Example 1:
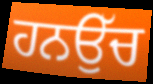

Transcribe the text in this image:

ਹਨਉੱਚ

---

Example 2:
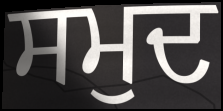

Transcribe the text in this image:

ਸਮੁਦ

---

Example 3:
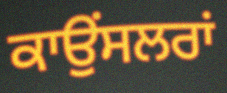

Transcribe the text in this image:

ਕਾਉਂਸਲਰਾਂ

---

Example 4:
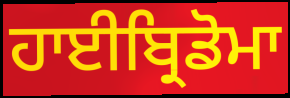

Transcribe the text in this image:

ਹਾਈਬ੍ਰਿਡੋਮਾ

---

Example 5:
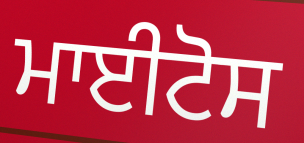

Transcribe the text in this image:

ਮਾਈਟੋਸ